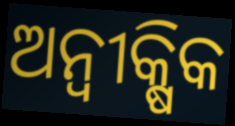
ଅନ୍ୱୀକ୍ଷିକ